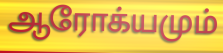
ஆரோக்யமும்